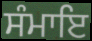
ਸੰਮਾਇ